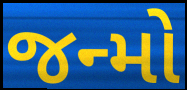
જન્મો